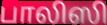
பாலிஸி